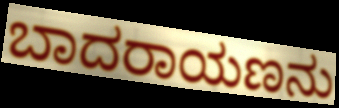
ಬಾದರಾಯಣನು